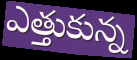
ఎత్తుకున్న